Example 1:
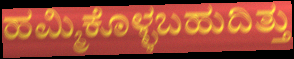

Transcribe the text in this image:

ಹಮ್ಮಿಕೊಳ್ಳಬಹುದಿತ್ತು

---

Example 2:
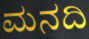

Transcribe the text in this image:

ಮನದಿ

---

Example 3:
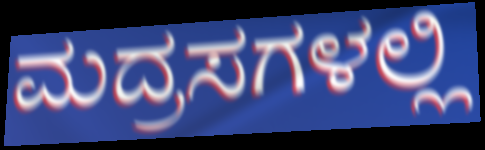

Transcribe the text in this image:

ಮದ್ರಸಗಳಲ್ಲಿ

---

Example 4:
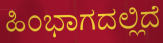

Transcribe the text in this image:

ಹಿಂಭಾಗದಲ್ಲಿದೆ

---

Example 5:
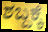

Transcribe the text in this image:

ಶಬ್ದಕ್ಕೆ